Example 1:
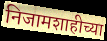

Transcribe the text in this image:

निजामशाहीच्या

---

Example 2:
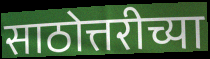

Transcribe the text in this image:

साठोत्तरीच्या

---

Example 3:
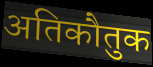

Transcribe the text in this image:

अतिकौतुक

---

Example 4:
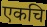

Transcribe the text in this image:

एकचि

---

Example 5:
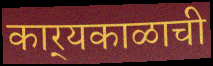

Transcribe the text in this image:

कार्यकाळाची